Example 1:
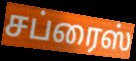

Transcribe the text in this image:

சப்ரைஸ்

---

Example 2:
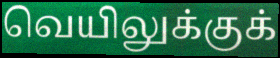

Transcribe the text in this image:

வெயிலுக்குக்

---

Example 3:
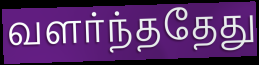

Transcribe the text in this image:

வளர்ந்ததேது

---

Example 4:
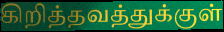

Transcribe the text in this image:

கிறித்தவத்துக்குள்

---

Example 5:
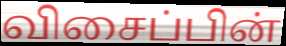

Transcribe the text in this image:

விசைப்பின்